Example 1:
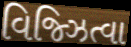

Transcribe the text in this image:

વિજ્ઝિત્વા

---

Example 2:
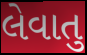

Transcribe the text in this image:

લેવાતુ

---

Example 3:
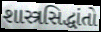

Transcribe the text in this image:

શાસ્ત્રસિદ્ધાંતો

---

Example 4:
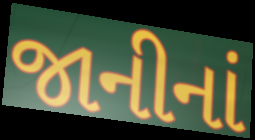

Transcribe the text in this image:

જાનીનાં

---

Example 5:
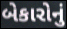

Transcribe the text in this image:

બેકારોનું